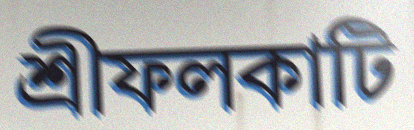
শ্রীফলকাটি